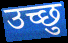
उच्छु